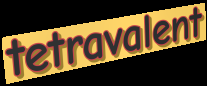
tetravalent